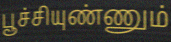
பூச்சியுண்ணும்